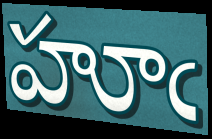
హూఁ